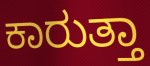
ಕಾರುತ್ತಾ